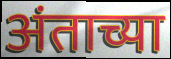
अंताच्या